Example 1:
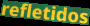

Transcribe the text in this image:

refletidos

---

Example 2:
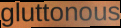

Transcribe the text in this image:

gluttonous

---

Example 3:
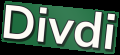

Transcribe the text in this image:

Divdi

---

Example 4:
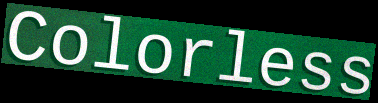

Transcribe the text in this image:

Colorless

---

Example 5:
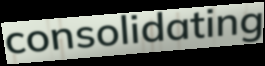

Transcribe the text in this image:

consolidating